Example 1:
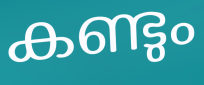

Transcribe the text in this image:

കണ്ടും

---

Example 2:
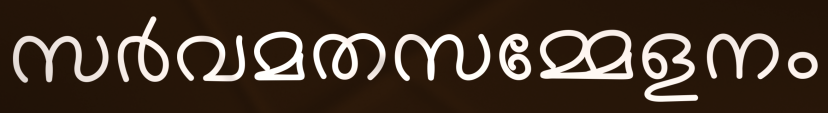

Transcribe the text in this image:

സർവമതസമ്മേളനം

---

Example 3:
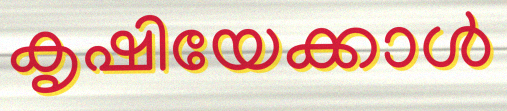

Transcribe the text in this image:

കൃഷിയേക്കാൾ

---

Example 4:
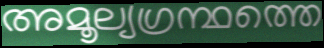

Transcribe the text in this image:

അമൂല്യഗ്രന്ഥത്തെ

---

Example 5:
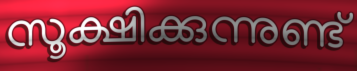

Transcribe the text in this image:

സൂക്ഷിക്കുന്നുണ്ട്